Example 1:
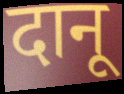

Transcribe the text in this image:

दानू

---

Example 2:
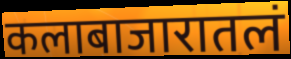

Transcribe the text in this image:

कलाबाजारातलं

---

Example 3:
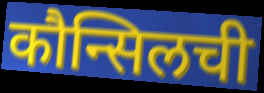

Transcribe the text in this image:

कौन्सिलची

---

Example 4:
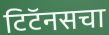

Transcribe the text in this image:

टिटॅनसचा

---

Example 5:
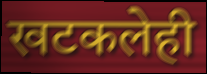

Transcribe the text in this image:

खटकलेही